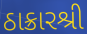
ઠાક્રારશ્રી